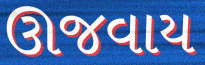
ઊજવાય